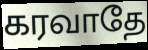
கரவாதே